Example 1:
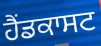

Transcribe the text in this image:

ਹੈਂਡਕਾਸਟ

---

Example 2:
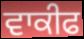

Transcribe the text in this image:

ਵਾਕੀਫ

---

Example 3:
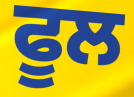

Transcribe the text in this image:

ਫੂਲ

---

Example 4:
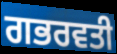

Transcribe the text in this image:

ਗਭਰਵਤੀ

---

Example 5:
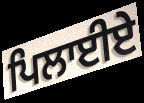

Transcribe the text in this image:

ਪਿਲਾਈਏ